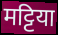
मट्टिया